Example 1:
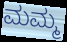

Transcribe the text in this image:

ಮಮ್ಮ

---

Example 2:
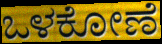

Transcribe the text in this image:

ಒಳಕೋಣೆ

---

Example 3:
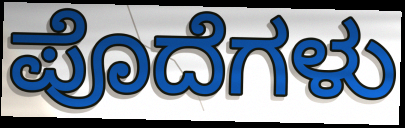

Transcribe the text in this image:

ಪೊದೆಗಳು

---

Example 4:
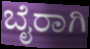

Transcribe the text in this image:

ಬೈರಾಗಿ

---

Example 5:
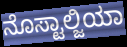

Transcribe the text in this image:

ನೊಸ್ಟಾಲ್ಜಿಯಾ